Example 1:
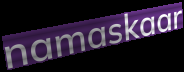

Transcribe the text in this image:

namaskaar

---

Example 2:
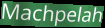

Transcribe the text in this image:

Machpelah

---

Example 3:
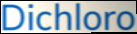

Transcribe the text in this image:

Dichloro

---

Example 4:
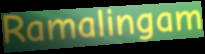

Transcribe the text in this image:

Ramalingam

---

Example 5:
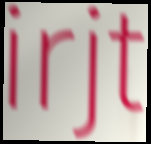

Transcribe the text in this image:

irjt